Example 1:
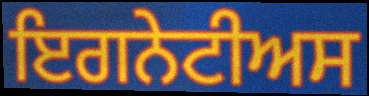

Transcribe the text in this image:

ਇਗਨੇਟੀਅਸ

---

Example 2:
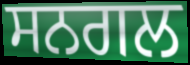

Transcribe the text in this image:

ਸਨਗਲ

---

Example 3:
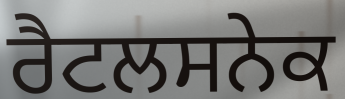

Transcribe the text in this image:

ਰੈਟਲਸਨੇਕ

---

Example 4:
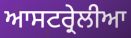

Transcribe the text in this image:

ਆਸਟਰ੍ਰੇਲੀਆ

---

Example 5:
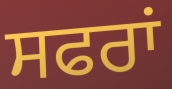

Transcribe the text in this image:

ਸਫਰਾਂ